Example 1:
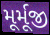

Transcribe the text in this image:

મૂર્મૂજી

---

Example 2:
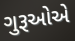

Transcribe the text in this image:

ગુરૂઓએ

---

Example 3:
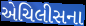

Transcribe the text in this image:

એચિલીસના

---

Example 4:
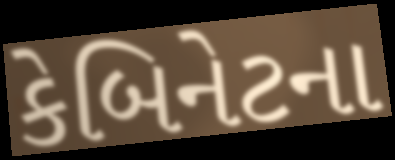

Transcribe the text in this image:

કેબિનેટના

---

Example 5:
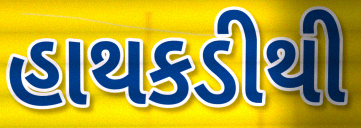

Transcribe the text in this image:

હાથકડીથી